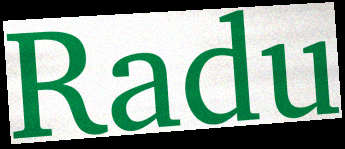
Radu